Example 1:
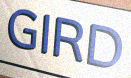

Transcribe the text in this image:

GIRD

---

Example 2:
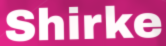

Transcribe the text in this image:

Shirke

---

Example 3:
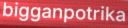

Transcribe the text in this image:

bigganpotrika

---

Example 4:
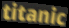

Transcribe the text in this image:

titanic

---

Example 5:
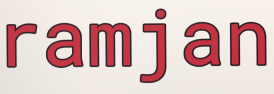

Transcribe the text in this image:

ramjan